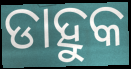
ଡାହୁକ